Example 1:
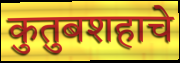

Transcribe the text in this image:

कुतुबशहाचे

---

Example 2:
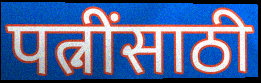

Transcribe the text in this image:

पत्नींसाठी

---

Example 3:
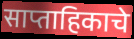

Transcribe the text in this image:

साप्ताहिकाचे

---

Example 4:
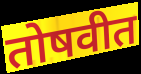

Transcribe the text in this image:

तोषवीत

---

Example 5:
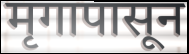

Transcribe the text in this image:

मृगापासून